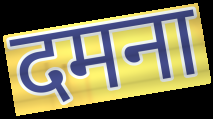
दमना